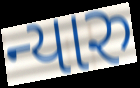
ન્યારુ